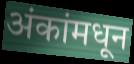
अंकांमधून